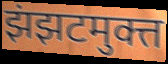
झंझटमुक्त